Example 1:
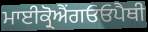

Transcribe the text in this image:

ਮਾਈਕ੍ਰੋਐਂਗਓਓਪੈਥੀ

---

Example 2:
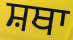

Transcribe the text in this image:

ਸ਼ਥਾ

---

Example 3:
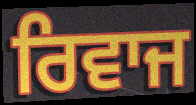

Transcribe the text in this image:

ਰਿਵਾਜ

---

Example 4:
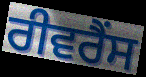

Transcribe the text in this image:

ਰੀਵਰੈਂਸ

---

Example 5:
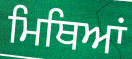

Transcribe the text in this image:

ਮਿਥਿਆਂ